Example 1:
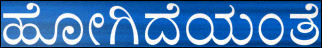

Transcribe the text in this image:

ಹೋಗಿದೆಯಂತೆ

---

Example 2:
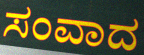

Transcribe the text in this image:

ಸಂವಾದ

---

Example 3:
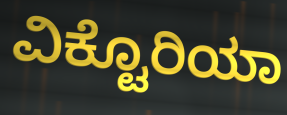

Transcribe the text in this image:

ವಿಕ್ಟೊರಿಯಾ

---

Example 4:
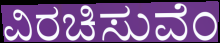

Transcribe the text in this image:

ವಿರಚಿಸುವೆಂ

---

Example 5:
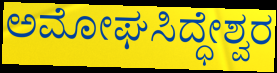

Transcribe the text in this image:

ಅಮೋಘಸಿದ್ಧೇಶ್ವರ